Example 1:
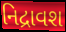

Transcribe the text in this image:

નિદ્રાવશ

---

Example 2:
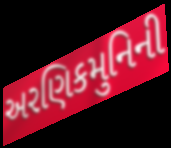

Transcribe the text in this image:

અરણિકમુનિની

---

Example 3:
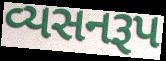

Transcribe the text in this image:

વ્યસનરૂપ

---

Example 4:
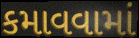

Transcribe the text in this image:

કમાવવામાં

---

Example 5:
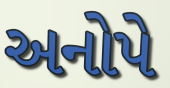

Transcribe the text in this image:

અનોપે